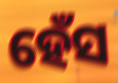
ହେଁସ